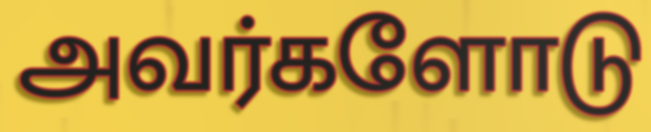
அவர்களோடு